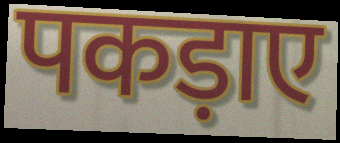
पकड़ाए